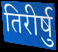
तिरीर्षु